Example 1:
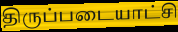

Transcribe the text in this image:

திருப்படையாட்சி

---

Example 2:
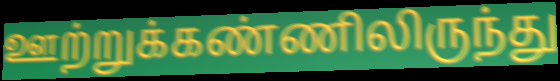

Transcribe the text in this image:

ஊற்றுக்கண்ணிலிருந்து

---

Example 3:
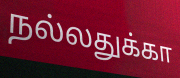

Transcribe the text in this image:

நல்லதுக்கா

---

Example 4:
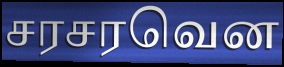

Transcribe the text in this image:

சரசரவென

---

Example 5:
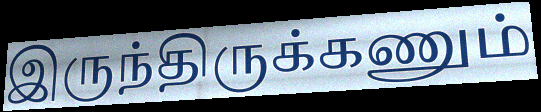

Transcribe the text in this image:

இருந்திருக்கணும்